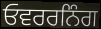
ਓਵਰਰਨਿੰਗ